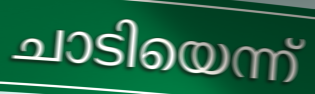
ചാടിയെന്ന്